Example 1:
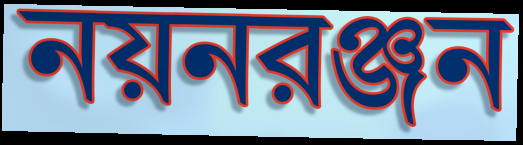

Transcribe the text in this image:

নয়নরঞ্জন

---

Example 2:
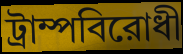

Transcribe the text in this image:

ট্রাম্পবিরোধী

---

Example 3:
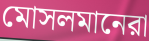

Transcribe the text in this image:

মোসলমানেরা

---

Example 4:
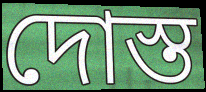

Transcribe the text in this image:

দোস্ত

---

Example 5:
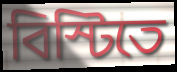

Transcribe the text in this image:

বিস্টিতে